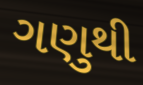
ગણુથી